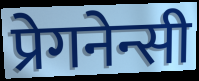
प्रेगनेन्सी